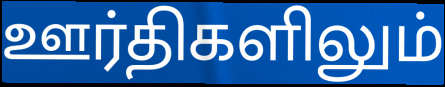
ஊர்திகளிலும்